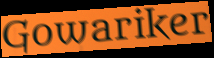
Gowariker